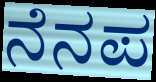
ನೆನಪ